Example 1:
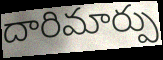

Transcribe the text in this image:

దారిమార్పు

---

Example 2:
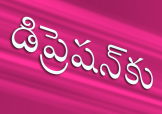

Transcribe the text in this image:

డిప్రెషన్‌కు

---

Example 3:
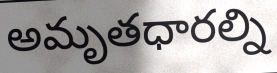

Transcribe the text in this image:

అమృతధారల్ని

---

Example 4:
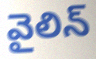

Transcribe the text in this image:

వైలిన్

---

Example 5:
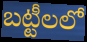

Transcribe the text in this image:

బట్టీలలో